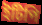
ইটিপি